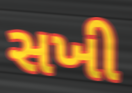
સખી